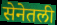
सेनेतली